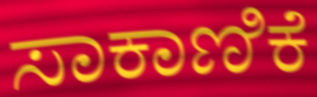
ಸಾಕಾಣಿಕೆ